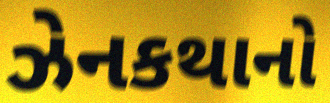
ઝેનકથાનો